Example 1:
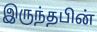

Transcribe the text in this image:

இருந்தபின்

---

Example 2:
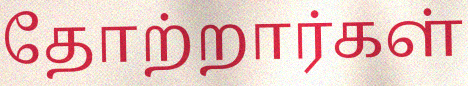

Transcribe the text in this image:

தோற்றார்கள்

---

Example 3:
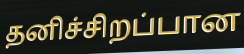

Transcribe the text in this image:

தனிச்சிறப்பான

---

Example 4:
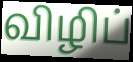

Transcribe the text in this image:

விழிப்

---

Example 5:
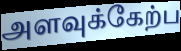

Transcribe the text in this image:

அளவுக்கேற்ப